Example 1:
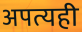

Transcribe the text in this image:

अपत्यही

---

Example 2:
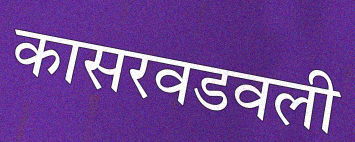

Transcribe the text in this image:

कासरवडवली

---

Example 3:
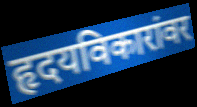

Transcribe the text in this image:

हृदयविकारांवर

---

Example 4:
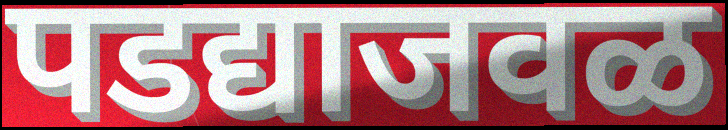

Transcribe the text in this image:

पडद्याजवळ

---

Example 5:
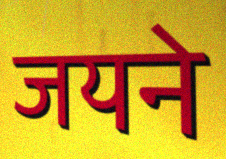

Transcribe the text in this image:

जयने